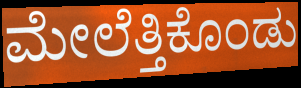
ಮೇಲೆತ್ತಿಕೊಂಡು